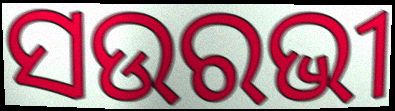
ସଉରଭୀ